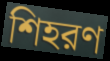
শিহরণ